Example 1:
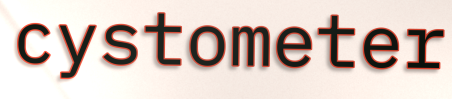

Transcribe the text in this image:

cystometer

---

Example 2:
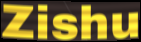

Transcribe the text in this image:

Zishu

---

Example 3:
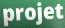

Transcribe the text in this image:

projet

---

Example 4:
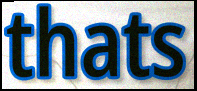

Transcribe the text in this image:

thats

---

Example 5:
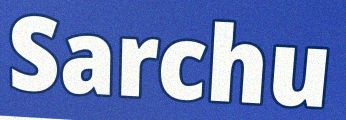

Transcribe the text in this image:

Sarchu